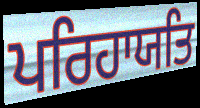
ਪਰਿਹਾਯਤਿ